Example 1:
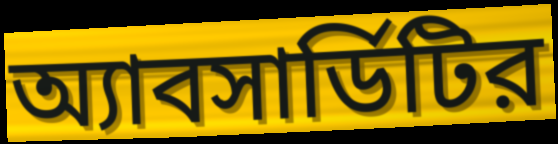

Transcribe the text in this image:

অ্যাবসার্ডিটির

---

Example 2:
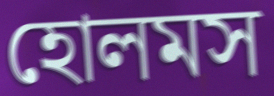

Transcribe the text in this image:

হোলমস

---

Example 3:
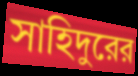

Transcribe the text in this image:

সাহিদুরের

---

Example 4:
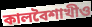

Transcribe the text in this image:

কালবৈশাখীও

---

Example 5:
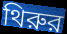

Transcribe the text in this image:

থিরুর